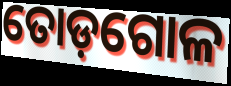
ତୋଡ଼ଗୋଳ